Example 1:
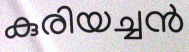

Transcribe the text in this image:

കുരിയച്ചൻ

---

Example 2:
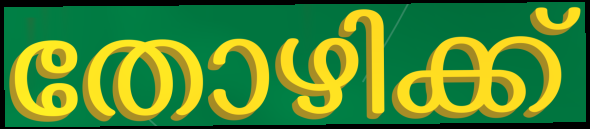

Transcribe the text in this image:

തോഴിക്ക്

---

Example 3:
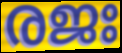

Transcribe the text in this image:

രജഃ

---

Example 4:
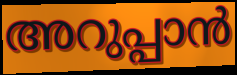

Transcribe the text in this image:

അറുപ്പാൻ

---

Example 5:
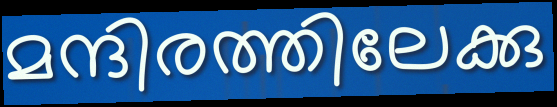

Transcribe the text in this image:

മന്ദിരത്തിലേക്കു